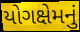
યોગક્ષેમનું